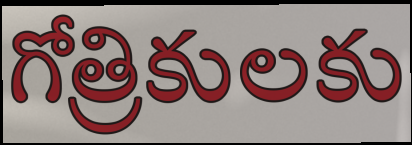
గోత్రికులకు